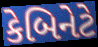
કેબિનેટે